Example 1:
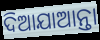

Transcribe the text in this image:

ଦିଆଯାଆନ୍ତା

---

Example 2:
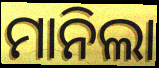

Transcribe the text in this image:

ମାନିଲା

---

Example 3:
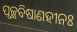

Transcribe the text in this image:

ପୃଚ୍ଛବିଷାଣହୀନଃ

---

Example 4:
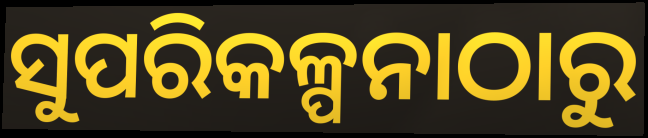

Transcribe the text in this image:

ସୁପରିକଳ୍ପନାଠାରୁ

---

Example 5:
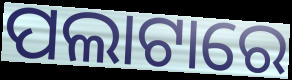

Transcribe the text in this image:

ପଲାଟାରେ